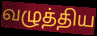
வழுத்திய